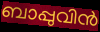
ബാപ്പുവിൻ